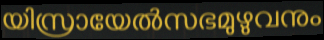
യിസ്രായേൽസഭമുഴുവനും